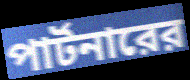
পার্টনারের